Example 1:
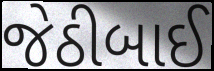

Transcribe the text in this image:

જેઠીબાઈ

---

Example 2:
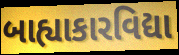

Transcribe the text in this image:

બાહ્યાકારવિદ્યા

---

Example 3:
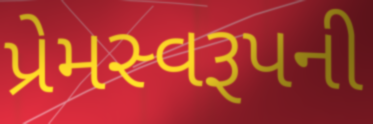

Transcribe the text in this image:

પ્રેમસ્વરૂપની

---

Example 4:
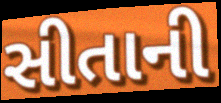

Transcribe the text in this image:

સીતાની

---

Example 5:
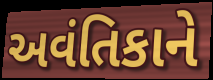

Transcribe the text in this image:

અવંતિકાને